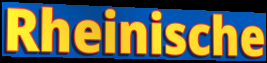
Rheinische